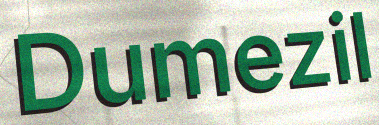
Dumezil